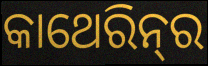
କାଥେରିନ୍‌ର